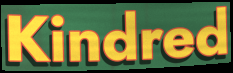
Kindred